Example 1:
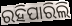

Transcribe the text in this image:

ରହିପାରିଲି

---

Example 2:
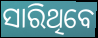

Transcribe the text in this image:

ସାରିଥିବେ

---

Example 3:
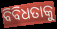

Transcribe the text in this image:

ବିବିଧତାକୁ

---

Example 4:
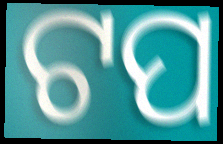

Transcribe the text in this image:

ଟପ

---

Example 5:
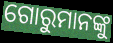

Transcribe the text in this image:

ଗୋରୁମାନଙ୍କୁ